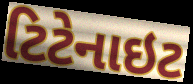
ટિટેનાઇટ